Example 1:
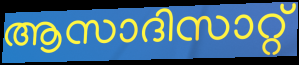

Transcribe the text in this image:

ആസാദിസാറ്റ്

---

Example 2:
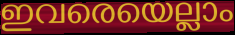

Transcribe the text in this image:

ഇവരെയെല്ലാം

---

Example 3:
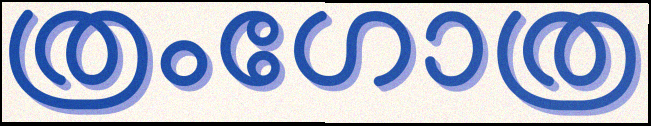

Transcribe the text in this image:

ത്രംഗോത്ര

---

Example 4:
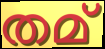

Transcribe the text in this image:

തമ്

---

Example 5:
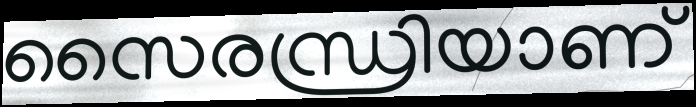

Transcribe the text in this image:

സൈരന്ധ്രിയാണ്